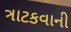
ત્રાટકવાની